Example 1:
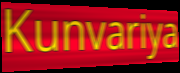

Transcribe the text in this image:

Kunvariya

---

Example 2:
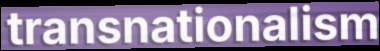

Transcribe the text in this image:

transnationalism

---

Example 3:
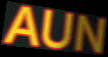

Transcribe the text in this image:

AUN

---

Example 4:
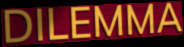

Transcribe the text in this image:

DILEMMA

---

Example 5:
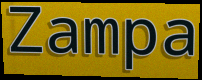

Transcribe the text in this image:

Zampa